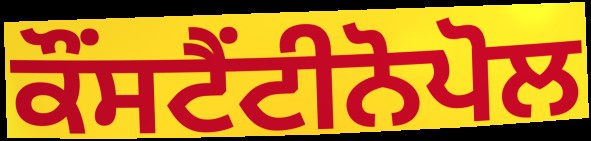
ਕੌਂਸਟੈਂਟੀਨੋਪੋਲ